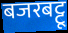
बजरबट्टू